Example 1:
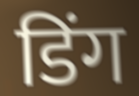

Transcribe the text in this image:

डिंग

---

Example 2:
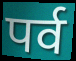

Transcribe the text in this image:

पर्व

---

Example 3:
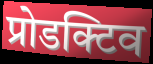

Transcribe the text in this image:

प्रोडक्टिव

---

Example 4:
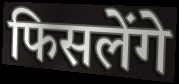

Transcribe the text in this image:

फिसलेंगे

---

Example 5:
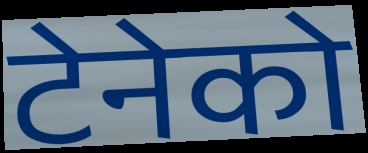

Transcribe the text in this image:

टेनेको